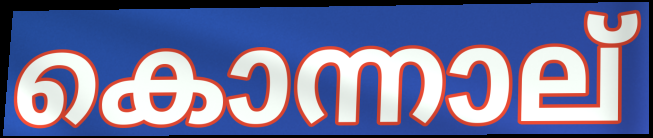
കൊന്നാല്